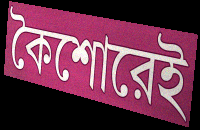
কৈশোরেই